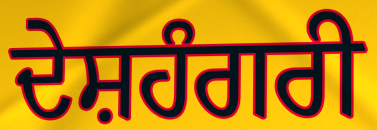
ਦੇਸ਼ਹੰਗਰੀ